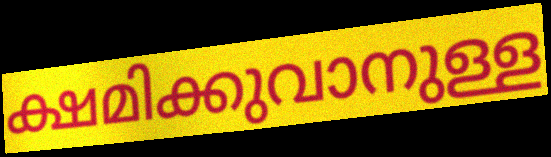
ക്ഷമിക്കുവാനുള്ള